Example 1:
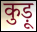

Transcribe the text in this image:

कुड़ू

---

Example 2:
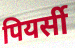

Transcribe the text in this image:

पियर्सी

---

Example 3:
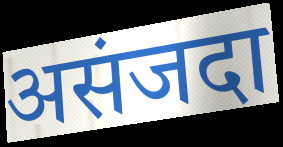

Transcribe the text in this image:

असंजदा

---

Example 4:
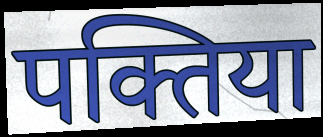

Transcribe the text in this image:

पक्तिया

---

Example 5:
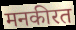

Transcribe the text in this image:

मनकीरत